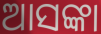
ଆସଙ୍କା